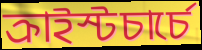
ক্রাইস্টচার্চে